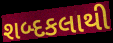
શબ્દકલાથી